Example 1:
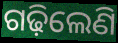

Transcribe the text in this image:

ଗଢ଼ିଲେଣି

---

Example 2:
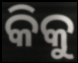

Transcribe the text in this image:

କିକୁ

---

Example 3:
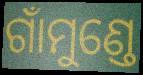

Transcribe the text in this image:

ଗାଁମୁଣ୍ଡେ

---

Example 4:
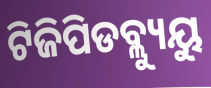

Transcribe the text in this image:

ଟିଜିପିଡବ୍ଲ୍ୟୁୟୁ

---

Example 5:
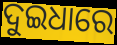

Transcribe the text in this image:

ଦୁଇଧାରେ